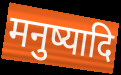
मनुष्यादि